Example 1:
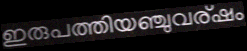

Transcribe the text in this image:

ഇരുപത്തിയഞ്ചുവര്ഷം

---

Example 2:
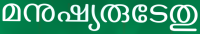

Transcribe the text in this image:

മനുഷ്യരുടേതു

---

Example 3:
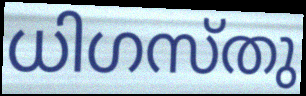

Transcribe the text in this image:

ധിഗസ്തു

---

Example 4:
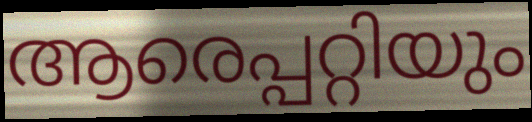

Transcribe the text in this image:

ആരെപ്പറ്റിയും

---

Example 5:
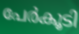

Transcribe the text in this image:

പേർകൂടി